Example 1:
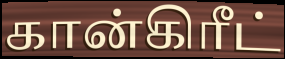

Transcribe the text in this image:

கான்கிரீட்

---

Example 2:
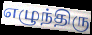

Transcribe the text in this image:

எழுந்திரு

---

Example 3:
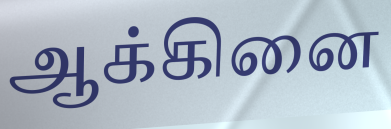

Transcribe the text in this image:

ஆக்கினை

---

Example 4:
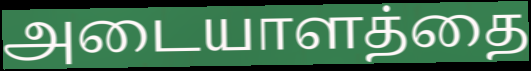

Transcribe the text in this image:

அடையாளத்தை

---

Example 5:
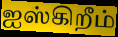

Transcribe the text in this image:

ஐஸ்கிறீம்